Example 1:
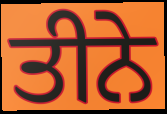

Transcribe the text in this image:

ਤੀਨੇ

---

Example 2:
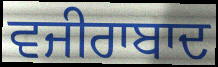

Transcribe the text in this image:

ਵਜੀਰਾਬਾਦ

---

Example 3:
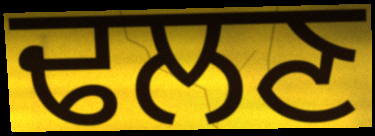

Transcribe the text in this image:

ਢਲਣ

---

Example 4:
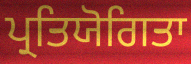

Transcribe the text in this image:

ਪ੍ਰਤਿਯੋਗਿਤਾ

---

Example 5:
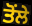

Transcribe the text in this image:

ਤੋਂਲੇ